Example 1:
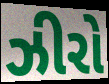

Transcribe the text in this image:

ઝીરો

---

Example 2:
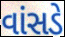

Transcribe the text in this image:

વાંસડે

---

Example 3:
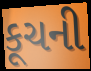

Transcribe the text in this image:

કૂચની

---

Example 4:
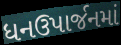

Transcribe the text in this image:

ધનઉપાર્જનમાં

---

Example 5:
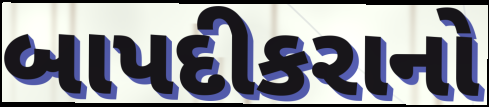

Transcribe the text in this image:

બાપદીકરાનો